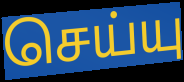
செய்யு